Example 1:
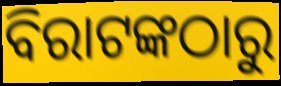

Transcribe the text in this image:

ବିରାଟଙ୍କଠାରୁ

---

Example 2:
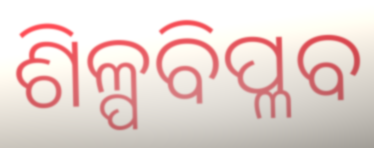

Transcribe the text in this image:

ଶିଳ୍ପବିପ୍ଳବ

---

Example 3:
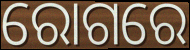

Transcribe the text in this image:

ରୋଗରେ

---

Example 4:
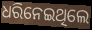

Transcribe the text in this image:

ଧରିନେଇଥିଲେ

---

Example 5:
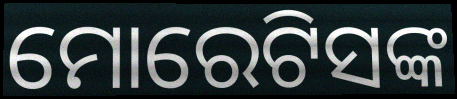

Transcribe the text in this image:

ମୋରେଟିସଙ୍କ